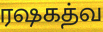
ரஷகத்வ